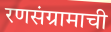
रणसंग्रामाची